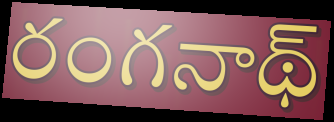
రంగనాథ్